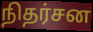
நிதர்சன